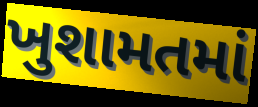
ખુશામતમાં